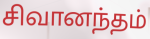
சிவானந்தம்